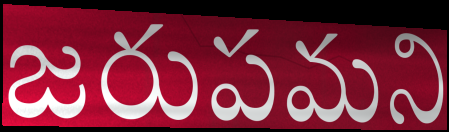
జరుపమని